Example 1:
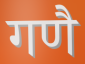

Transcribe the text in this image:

गणै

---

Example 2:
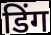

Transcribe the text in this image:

डिंग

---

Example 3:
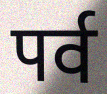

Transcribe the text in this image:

पर्व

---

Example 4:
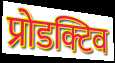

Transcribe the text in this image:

प्रोडक्टिव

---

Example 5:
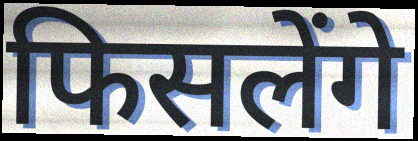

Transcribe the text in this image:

फिसलेंगे